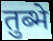
तुब्भे